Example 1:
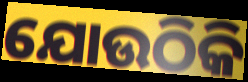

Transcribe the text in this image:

ଯୋଉଠିକି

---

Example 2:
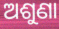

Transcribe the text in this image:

ଅଶୁଣା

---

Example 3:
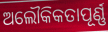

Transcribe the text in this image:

ଅଲୌକିକତାପୂର୍ଣ୍ଣ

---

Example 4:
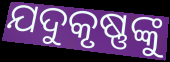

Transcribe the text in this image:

ଯଦୁକୃଷ୍ଣଙ୍କୁ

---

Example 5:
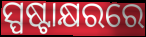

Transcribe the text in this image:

ସ୍ପଷ୍ଟାକ୍ଷରରେ